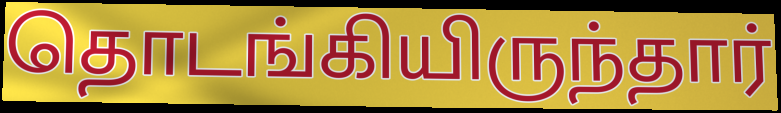
தொடங்கியிருந்தார்